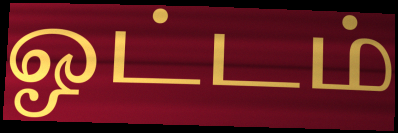
ஓட்டம்